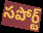
సపోర్ట్